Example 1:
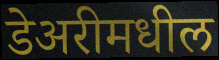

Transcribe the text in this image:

डेअरीमधील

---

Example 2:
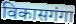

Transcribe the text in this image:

विकासगंगा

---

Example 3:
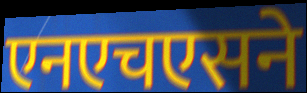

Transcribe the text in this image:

एनएचएसने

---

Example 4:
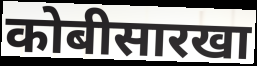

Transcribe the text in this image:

कोबीसारखा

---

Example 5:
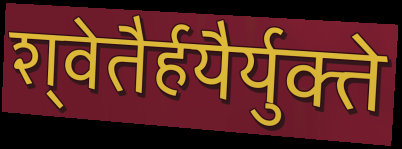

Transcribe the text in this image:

श्वेतैर्हयैर्युक्ते